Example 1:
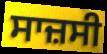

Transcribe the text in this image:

ਸਾਜ਼ਸੀ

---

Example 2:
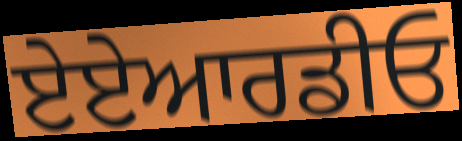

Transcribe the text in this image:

ਏਏਆਰਡੀਓ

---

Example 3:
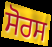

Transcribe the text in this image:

ਸੋਰਸ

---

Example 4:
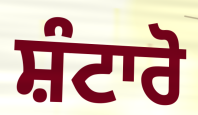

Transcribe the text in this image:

ਸ਼ੰਟਾਰੋ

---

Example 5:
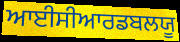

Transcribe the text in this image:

ਆਈਸੀਆਰਡਬਲਯੂ